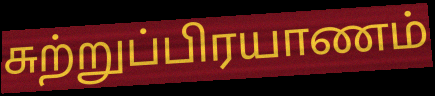
சுற்றுப்பிரயாணம்